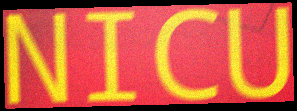
NICU